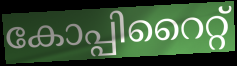
കോപ്പിറൈറ്റ്